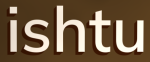
ishtu